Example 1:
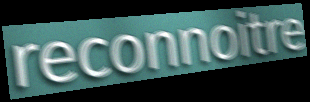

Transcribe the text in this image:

reconnoitre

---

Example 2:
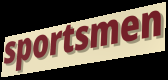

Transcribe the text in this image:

sportsmen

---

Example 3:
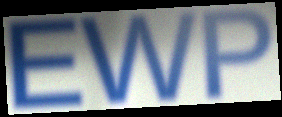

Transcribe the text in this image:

EWP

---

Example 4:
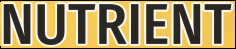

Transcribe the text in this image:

NUTRIENT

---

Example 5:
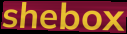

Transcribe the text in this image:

shebox